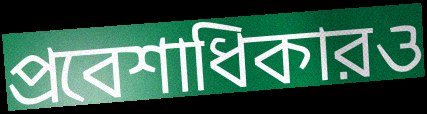
প্রবেশাধিকারও